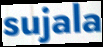
sujala